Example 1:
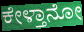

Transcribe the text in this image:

ಕೇಳ್ತಾನೋ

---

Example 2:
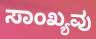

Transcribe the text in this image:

ಸಾಂಖ್ಯವು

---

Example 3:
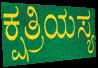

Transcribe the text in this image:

ಕ್ಷತ್ರಿಯಸ್ಯ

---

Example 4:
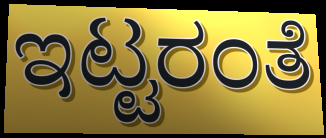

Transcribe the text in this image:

ಇಟ್ಟರಂತೆ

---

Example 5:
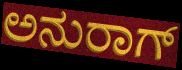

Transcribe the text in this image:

ಅನುರಾಗ್